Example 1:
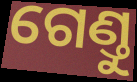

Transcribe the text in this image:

ଗେଣ୍ତୁ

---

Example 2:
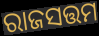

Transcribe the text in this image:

ରାଜସତ୍ତମ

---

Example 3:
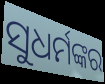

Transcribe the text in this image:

ସୁଧର୍ମଙ୍କର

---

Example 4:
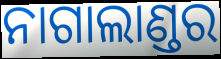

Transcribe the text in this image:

ନାଗାଲାଣ୍ଡର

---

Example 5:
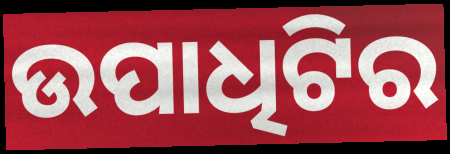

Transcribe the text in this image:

ଉପାଧିଟିର